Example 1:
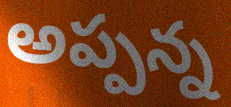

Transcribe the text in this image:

అప్పన్న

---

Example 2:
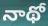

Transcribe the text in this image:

నాథో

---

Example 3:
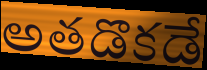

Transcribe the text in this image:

అతడొకడే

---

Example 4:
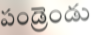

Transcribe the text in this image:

పండ్రెండు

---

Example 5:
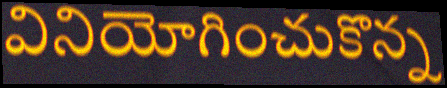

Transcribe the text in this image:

వినియోగించుకొన్న